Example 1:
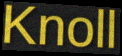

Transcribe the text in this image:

Knoll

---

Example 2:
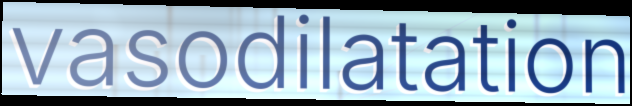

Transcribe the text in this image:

vasodilatation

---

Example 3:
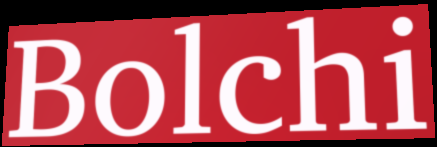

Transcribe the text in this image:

Bolchi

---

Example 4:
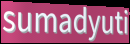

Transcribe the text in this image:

sumadyuti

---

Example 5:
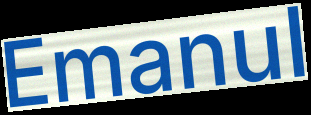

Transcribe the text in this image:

Emanul